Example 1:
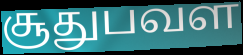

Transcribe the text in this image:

சூதுபவள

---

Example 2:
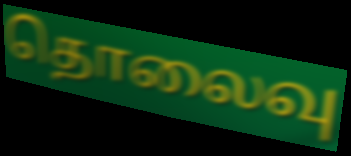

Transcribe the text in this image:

தொலைவு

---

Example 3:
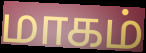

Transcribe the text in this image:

மாகம்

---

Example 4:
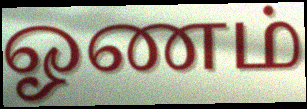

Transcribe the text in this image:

ஓணம்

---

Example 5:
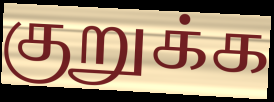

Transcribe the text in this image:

குறுக்க